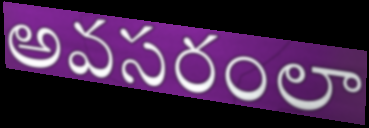
అవసరంలా